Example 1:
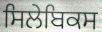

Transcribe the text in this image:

ਸਿਲੇਬਿਕਸ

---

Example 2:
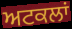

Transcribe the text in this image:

ਅਟਕਲਾਂ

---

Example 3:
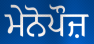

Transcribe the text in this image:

ਮੇਨੋਪੌਜ਼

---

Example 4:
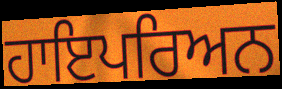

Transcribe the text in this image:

ਹਾਇਪਰਿਅਨ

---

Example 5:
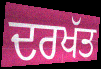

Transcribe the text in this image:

ਦਰਖੱਤ